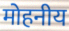
मोहनीय